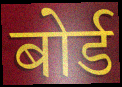
बोर्ड